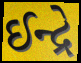
ઈન્દ્રે